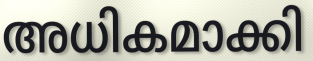
അധികമാക്കി